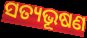
ସତ୍ୟଭୂଷଣ